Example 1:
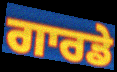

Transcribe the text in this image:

ਗਾਰਡੇ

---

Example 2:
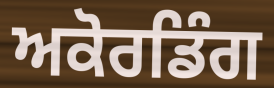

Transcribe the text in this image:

ਅਕੋਰਡਿੰਗ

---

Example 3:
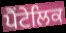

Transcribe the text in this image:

ਪੈਂਟੇਲਿਕ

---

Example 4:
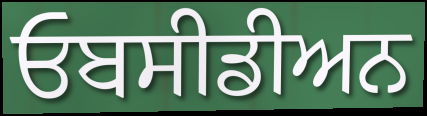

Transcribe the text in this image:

ਓਬਸੀਡੀਅਨ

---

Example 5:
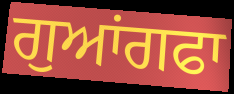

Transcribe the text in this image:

ਗੁਆਂਗਫਾ